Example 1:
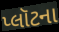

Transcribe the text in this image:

પ્લૉટના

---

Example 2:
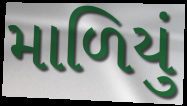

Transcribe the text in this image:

માળિયું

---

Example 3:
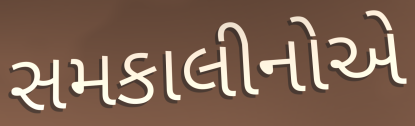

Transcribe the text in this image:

સમકાલીનોએ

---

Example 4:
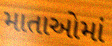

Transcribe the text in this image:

માતાઓમાં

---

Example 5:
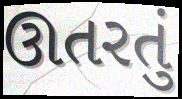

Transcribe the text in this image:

ઊતરતું